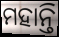
ମହାନ୍ତି